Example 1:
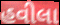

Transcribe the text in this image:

હવીલા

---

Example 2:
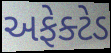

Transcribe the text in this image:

અફેક્ટેડ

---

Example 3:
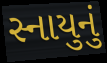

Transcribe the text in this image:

સ્નાયુનું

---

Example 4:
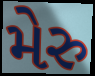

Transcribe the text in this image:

મેરુ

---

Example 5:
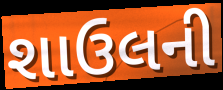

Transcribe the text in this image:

શાઉલની